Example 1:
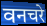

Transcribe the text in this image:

वनचरे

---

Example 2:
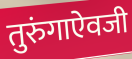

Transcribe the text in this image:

तुरुंगाऐवजी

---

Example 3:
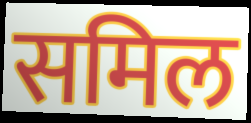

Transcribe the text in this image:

समिल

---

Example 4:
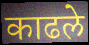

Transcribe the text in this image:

काढले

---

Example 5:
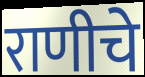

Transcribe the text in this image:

राणीचे